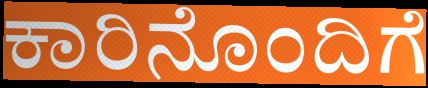
ಕಾರಿನೊಂದಿಗೆ